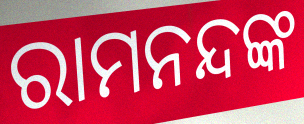
ରାମନନ୍ଦଙ୍କ